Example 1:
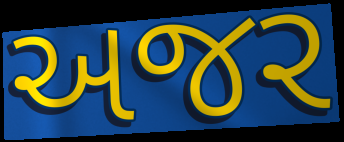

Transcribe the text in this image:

અજર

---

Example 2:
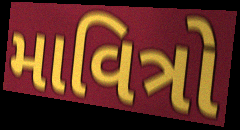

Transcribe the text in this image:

માવિત્રો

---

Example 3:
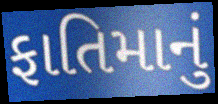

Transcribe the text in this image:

ફાતિમાનું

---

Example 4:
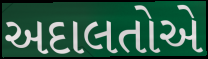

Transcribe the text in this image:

અદાલતોએ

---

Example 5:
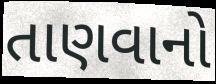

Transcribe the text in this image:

તાણવાનો